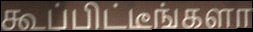
கூப்பிட்டீங்களா